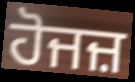
ਹੋਜਜ਼